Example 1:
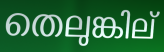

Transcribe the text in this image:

തെലുങ്കില്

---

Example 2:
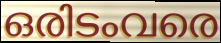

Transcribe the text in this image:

ഒരിടംവരെ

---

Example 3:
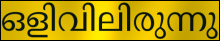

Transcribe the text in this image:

ഒളിവിലിരുന്നു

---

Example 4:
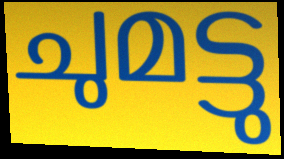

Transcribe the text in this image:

ചുമട്ടു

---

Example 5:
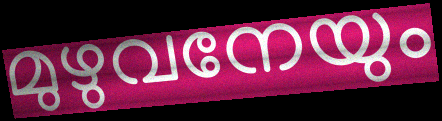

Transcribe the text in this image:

മുഴുവനേയും